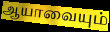
ஆயாவையும்